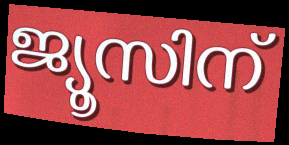
ജ്യൂസിന്